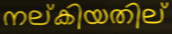
നല്കിയതില്